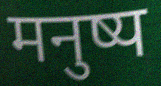
मनुष्‍य